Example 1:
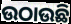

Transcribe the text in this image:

ଉଠାଉଛି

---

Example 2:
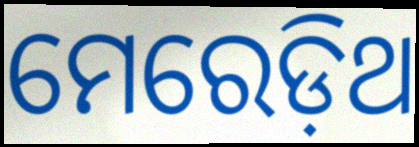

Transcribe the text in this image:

ମେରେଡ଼ିଥ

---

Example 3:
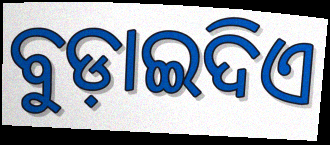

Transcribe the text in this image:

ବୁଡ଼ାଇଦିଏ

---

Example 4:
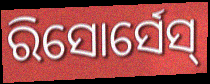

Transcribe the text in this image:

ରିସୋର୍ସେସ୍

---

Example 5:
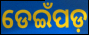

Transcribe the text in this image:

ଡେଇଁପଡ଼